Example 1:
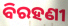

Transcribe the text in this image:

ବିରହଣୀ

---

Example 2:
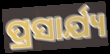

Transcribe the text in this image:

ପ୍ରସାର୍ଯ୍ୟ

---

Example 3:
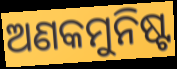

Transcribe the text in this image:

ଅଣକମୁନିଷ୍ଟ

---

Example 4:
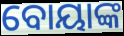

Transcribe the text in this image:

ବୋୟାଙ୍କ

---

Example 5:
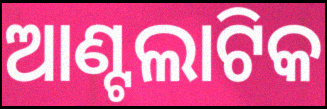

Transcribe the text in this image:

ଆଣ୍ଟଲାଟିକ